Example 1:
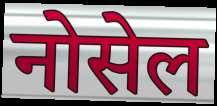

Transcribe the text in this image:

नोसेल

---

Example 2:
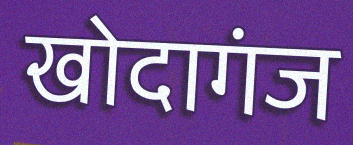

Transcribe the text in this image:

खोदागंज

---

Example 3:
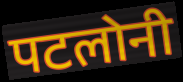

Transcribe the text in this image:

पटलोनी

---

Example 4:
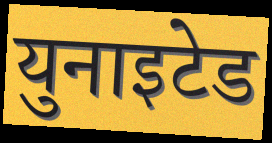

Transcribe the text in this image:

युनाइटेड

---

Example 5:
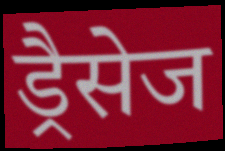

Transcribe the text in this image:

ड्रैसेज